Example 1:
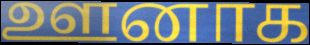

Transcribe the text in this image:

ஊனாக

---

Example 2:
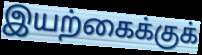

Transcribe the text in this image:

இயற்கைக்குக்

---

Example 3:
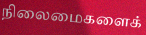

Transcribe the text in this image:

நிலைமைகளைக்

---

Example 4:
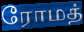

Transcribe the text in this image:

ரோமத்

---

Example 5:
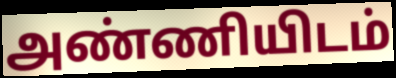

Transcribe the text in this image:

அண்ணியிடம்